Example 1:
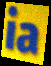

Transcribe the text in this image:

ia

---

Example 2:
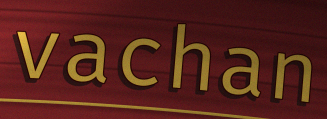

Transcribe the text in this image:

vachan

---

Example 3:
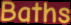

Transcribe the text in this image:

Baths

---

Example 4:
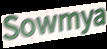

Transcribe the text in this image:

Sowmya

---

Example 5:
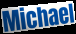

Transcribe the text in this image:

Michael